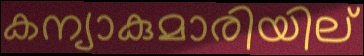
കന്യാകുമാരിയില്